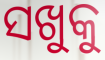
ସଖୁକୁ